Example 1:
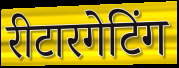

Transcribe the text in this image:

रीटारगेटिंग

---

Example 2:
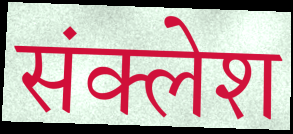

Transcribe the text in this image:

संक्लेश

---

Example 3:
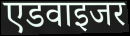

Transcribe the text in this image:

एडवाइजर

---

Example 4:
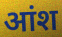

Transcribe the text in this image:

आंश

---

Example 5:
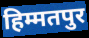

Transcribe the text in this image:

हिम्मतपुर